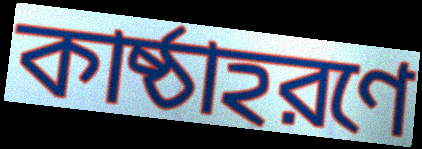
কাষ্ঠাহরণে